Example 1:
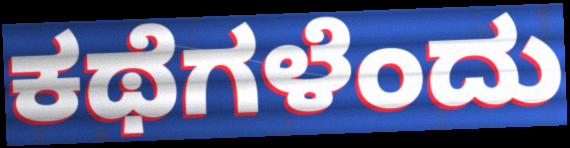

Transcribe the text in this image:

ಕಥೆಗಳೆಂದು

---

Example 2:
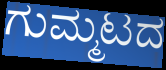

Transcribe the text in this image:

ಗುಮ್ಮಟದ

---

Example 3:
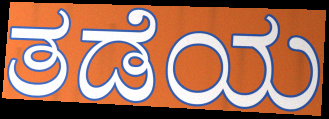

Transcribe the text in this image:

ತಡೆಯ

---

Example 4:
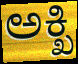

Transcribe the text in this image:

ಅಕ್ಖಿ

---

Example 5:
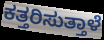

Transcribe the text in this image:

ಕತ್ತರಿಸುತ್ತಾಳೆ